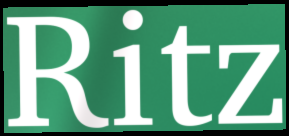
Ritz